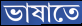
ভাষাতে